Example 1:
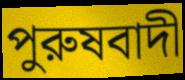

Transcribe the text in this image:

পুরুষবাদী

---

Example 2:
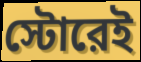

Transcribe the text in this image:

স্টোরেই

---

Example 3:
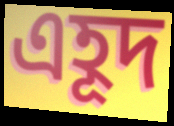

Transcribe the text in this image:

এহূদ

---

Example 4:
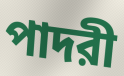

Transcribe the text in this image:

পাদরী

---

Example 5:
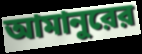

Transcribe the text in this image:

আমানুরের